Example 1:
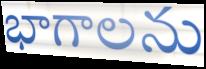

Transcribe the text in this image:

భాగాలను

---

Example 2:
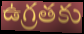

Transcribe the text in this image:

ఉగ్రతకు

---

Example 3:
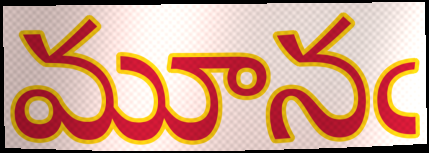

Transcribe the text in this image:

మూనఁ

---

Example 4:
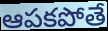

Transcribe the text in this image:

ఆపకపోతే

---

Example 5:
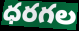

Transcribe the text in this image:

ధరగల